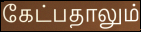
கேட்பதாலும்